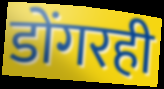
डोंगरही